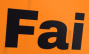
Fai